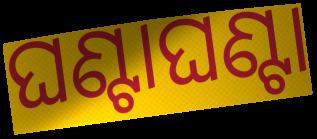
ଘଣ୍ଟାଘଣ୍ଟା